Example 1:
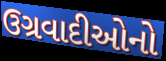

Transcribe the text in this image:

ઉગ્રવાદીઓનો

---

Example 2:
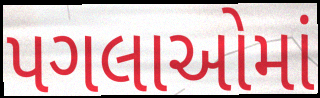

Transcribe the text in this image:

પગલાઓમાં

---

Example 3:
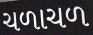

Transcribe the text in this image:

ચળાચળ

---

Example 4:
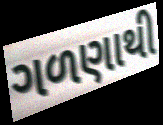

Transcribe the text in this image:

ગળણાથી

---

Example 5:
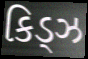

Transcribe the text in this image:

કિડ્ઝ